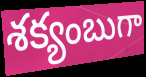
శక్యంబుగా